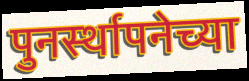
पुनर्स्थापनेच्या